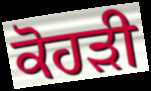
ਕੋਹੜੀ